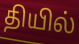
தியில்